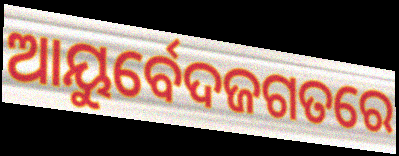
ଆୟୁର୍ବେଦଜଗତରେ